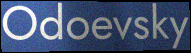
Odoevsky